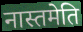
नास्तमेति